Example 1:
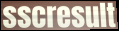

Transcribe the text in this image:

sscresult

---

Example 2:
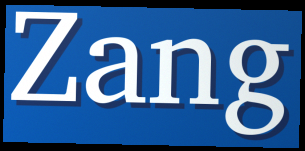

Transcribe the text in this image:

Zang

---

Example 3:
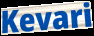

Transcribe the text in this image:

Kevari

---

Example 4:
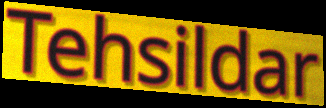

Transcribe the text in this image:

Tehsildar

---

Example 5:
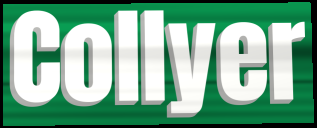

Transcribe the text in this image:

Collyer